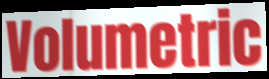
Volumetric